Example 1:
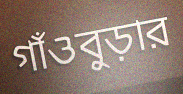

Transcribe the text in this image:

গাঁওবুড়ার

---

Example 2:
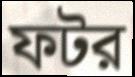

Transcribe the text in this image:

ফটর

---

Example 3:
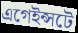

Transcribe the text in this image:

এগেইন্সটে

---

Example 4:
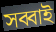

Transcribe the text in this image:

সব্বাই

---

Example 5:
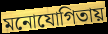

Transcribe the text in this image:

মনোযোগিতায়